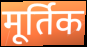
मूर्तिक